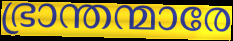
ഭ്രാന്തന്മാരേ